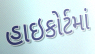
હાઇકોર્ટમાં